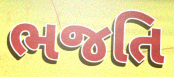
ભજતિ